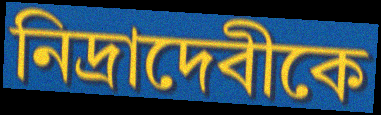
নিদ্রাদেবীকে